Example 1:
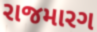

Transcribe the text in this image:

રાજમારગ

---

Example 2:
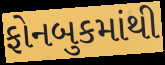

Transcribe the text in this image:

ફોનબુકમાંથી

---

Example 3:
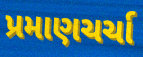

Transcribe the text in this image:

પ્રમાણચર્ચા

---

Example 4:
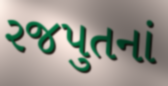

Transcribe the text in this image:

રજપુતનાં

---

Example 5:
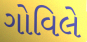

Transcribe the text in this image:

ગોવિલે